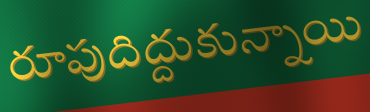
రూపుదిద్దుకున్నాయి